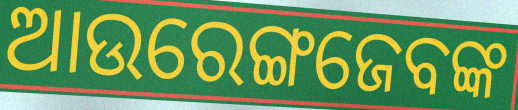
ଆଉରେଙ୍ଗଜେବଙ୍କ